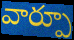
వార్పూ